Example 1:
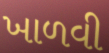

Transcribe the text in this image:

ખાળવી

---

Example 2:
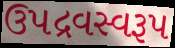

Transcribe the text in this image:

ઉપદ્રવસ્વરૂપ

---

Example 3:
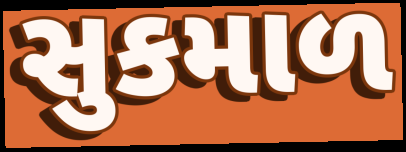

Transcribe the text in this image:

સુકમાળ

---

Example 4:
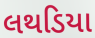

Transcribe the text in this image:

લથડિયા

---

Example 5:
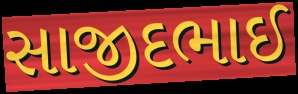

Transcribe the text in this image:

સાજીદભાઈ